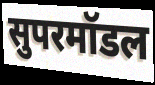
सुपरमॉडल